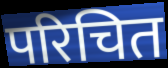
परिचित